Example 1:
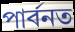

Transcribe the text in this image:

পাৰ্বনত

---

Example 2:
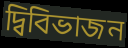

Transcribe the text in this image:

দ্বিবিভাজন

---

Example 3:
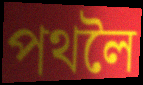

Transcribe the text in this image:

পথলৈ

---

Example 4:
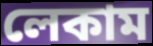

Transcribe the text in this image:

লেকাম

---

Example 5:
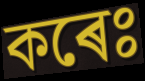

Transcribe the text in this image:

কৰেঃ